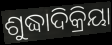
ଶୁଦ୍ଧାଦିକ୍ରିୟା